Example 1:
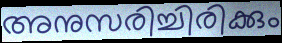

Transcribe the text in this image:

അനുസരിച്ചിരിക്കും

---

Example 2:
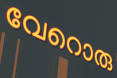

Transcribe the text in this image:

വേറൊരു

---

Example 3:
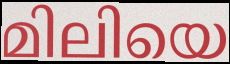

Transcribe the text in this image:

മിലിയെ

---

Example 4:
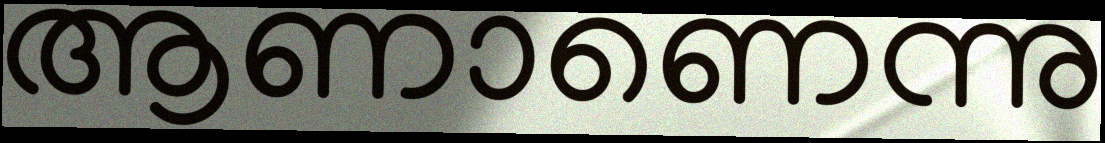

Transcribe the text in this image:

ആണാണെന്നു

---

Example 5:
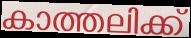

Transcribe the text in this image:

കാത്തലിക്ക്